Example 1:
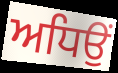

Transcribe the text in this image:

ਅਧਿਉਂ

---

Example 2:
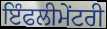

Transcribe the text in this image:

ਇੰਫਲੀਮੇਂਟਰੀ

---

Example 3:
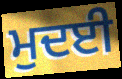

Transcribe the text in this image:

ਮੁਦਈ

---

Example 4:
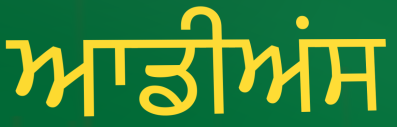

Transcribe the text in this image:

ਆਡੀਅਂਸ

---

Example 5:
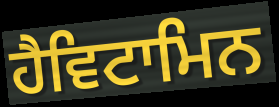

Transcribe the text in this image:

ਹੈਵਿਟਾਮਿਨ